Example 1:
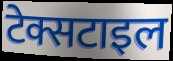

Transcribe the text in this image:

टेक्सटाइल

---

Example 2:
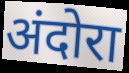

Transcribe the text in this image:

अंदोरा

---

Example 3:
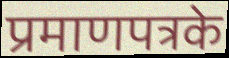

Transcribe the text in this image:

प्रमाणपत्रके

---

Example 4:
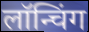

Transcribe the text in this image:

लॉन्चिंग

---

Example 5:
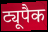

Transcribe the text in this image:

ट्यूपैक